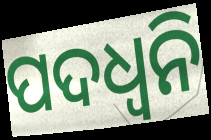
ପଦଧ୍ୱନି